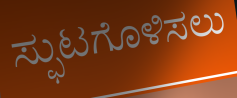
ಸ್ಫುಟಗೊಳಿಸಲು